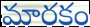
మారకం